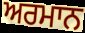
ਅਰਮਾਨ